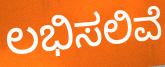
ಲಭಿಸಲಿವೆ